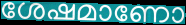
ശേഷമാണോ